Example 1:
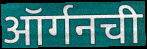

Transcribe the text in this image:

ऑर्गनची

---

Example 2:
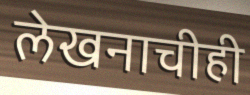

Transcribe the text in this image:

लेखनाचीही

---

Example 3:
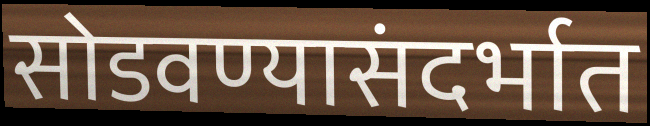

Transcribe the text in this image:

सोडवण्यासंदर्भात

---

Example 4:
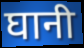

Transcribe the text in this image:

घानी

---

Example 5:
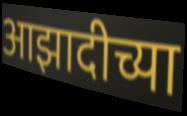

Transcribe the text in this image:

आझादीच्या